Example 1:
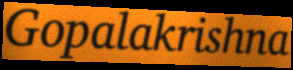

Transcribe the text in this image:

Gopalakrishna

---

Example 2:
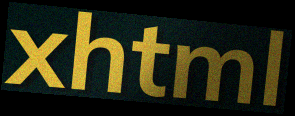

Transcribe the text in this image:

xhtml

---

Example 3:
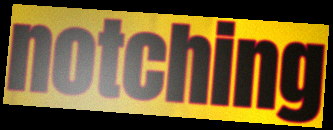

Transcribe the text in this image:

notching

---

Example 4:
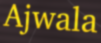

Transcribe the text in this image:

Ajwala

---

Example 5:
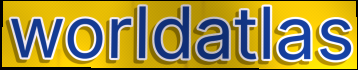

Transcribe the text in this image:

worldatlas